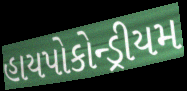
હાયપોકોન્ડ્રીયમ